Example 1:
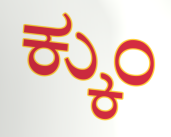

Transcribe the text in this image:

ಕ್ಕುಂ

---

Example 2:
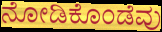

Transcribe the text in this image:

ನೋಡಿಕೊಂಡೆವು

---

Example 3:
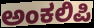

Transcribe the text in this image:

ಅಂಕಲಿಪಿ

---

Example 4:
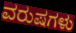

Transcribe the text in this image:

ವರುಷಗಳು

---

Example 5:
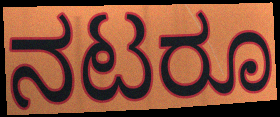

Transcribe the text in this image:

ನಟರೂ